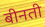
बीनती